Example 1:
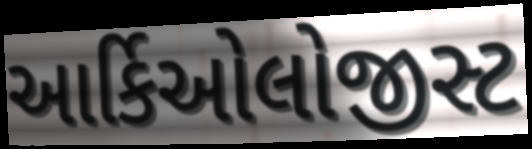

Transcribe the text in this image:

આર્કિઓલોજીસ્ટ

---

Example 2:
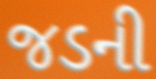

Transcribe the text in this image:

જડની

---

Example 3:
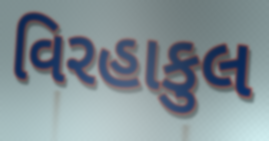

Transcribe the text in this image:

વિરહાકુલ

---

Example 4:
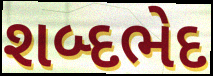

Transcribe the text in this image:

શબ્દભેદ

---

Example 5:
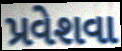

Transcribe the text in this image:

પ્રવેશવા